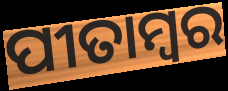
ପୀତାମ୍ୱର